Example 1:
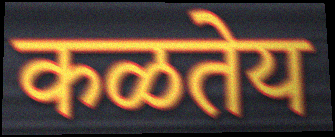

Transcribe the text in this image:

कळतेय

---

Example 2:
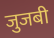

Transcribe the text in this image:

जुजबी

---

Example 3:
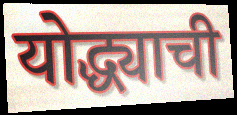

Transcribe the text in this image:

योद्ध्याची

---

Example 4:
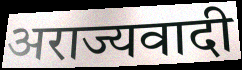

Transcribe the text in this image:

अराज्यवादी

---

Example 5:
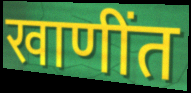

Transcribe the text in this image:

खाणींत